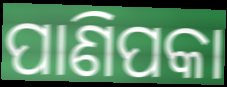
ପାଣିପକା